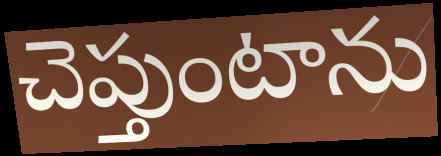
చెప్తుంటాను